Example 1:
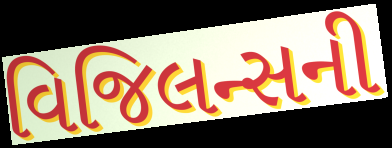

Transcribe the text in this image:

વિજિલન્સની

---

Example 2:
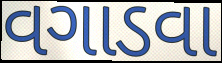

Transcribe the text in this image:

વગાડવા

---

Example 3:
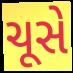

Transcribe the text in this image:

ચૂસે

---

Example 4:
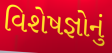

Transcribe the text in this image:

વિશેષજ્ઞોનું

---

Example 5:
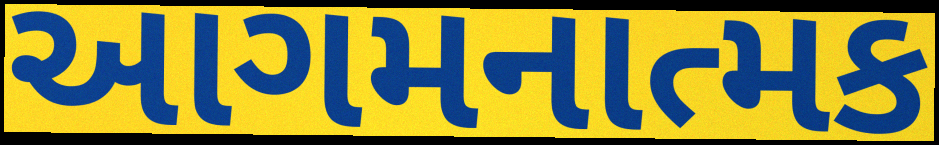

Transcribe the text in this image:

આગમનાત્મક